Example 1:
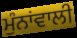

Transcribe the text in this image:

ਮੁੰਨਾਂਵਾਲੀ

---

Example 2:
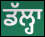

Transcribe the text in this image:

ਡੱਲ੍ਹਾ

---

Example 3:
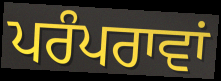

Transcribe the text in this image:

ਪਰੰਪਰਾਵਾਂ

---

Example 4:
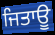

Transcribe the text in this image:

ਜਿਤਾਊ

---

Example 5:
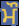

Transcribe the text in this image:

ਮੌ